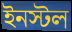
ইনস্টল